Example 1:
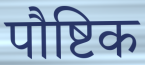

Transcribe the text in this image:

पौष्टिक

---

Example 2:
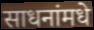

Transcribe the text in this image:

साधनांमधे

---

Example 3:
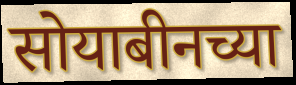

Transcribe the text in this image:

सोयाबीनच्या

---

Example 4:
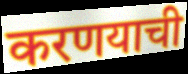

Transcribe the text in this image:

करणयाची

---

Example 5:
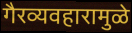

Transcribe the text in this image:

गैरव्यवहारामुळे